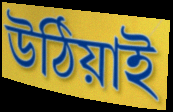
উঠিয়াই